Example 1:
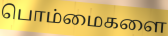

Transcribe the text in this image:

பொம்மைகளை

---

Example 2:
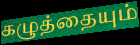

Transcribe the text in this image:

கழுத்தையும்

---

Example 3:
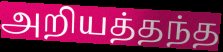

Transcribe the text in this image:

அறியத்தந்த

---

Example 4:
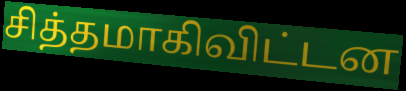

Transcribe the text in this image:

சித்தமாகிவிட்டன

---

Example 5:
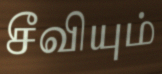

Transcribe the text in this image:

சீவியும்